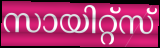
സായിറ്റ്സ്